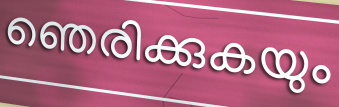
ഞെരിക്കുകയും